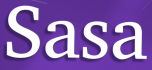
Sasa